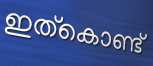
ഇത്കൊണ്ട്